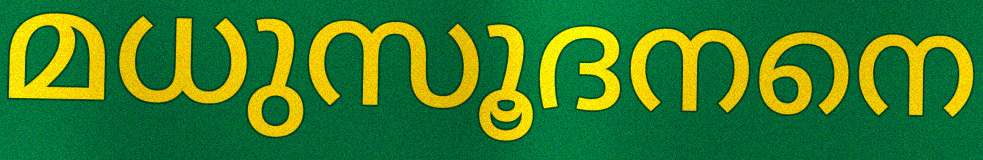
മധുസൂദനനെ